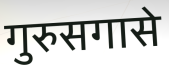
गुरुसगासे